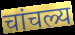
चांचल्य